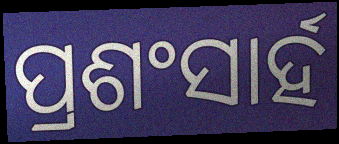
ପ୍ରଶଂସାର୍ହ